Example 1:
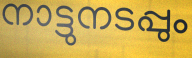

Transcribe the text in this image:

നാട്ടുനടപ്പും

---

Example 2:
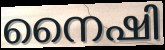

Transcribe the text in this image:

നൈഷി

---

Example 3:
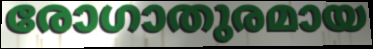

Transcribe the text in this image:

രോഗാതുരമായ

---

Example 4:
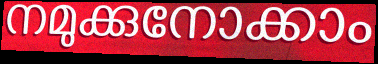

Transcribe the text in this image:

നമുക്കുനോക്കാം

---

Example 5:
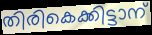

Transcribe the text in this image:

തിരികെക്കിട്ടാന്